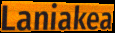
Laniakea